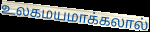
உலகமயமாக்கலால்